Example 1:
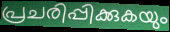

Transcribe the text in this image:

പ്രചരിപ്പിക്കുകയും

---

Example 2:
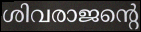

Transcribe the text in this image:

ശിവരാജന്റെ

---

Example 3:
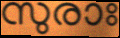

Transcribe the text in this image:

സുരാഃ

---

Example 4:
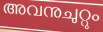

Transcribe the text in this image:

അവനുചുറ്റും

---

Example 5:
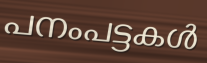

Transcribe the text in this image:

പനംപട്ടകൾ